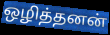
ஒழித்தனன்